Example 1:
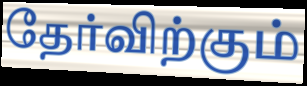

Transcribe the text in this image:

தேர்விற்கும்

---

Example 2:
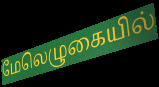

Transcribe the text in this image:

மேலெழுகையில்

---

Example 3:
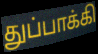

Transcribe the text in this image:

துப்பாக்கி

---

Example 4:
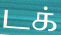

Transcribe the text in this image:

டக்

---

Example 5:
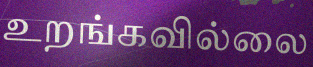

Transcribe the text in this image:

உறங்கவில்லை